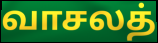
வாசலத்